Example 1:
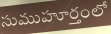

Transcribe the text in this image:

సుముహూర్తంలో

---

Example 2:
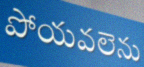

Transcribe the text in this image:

పోయవలెను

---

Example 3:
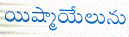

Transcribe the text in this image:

యిష్మాయేలును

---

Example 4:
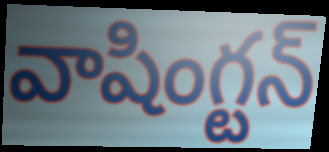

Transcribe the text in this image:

వాషింగ్టన్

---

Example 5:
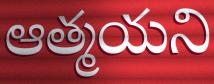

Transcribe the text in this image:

ఆత్మయని